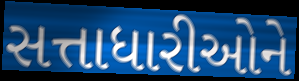
સત્તાધારીઓને